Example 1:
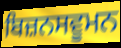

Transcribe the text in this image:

ਬਿਜ਼ਨਸਵੂਮਨ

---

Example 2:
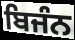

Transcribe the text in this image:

ਬਿਜੰਨ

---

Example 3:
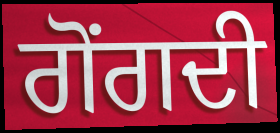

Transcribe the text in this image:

ਗੋਂਗਦੀ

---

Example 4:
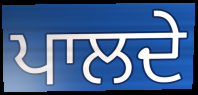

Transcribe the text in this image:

ਪਾਲਦੇ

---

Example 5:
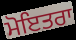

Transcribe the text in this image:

ਮੋਇਤਰਾ